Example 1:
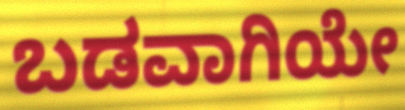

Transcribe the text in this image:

ಬಡವಾಗಿಯೇ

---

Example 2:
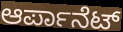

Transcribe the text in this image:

ಆರ್ಪಾನೆಟ್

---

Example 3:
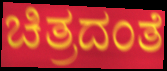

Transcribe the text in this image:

ಚಿತ್ರದಂತೆ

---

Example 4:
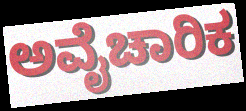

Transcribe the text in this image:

ಅವೈಚಾರಿಕ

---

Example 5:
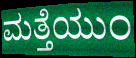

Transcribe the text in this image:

ಮತ್ತೆಯುಂ